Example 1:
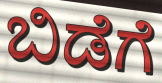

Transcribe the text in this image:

ಬಿಡೆಗೆ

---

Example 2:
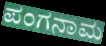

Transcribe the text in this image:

ಪಂಗನಾಮ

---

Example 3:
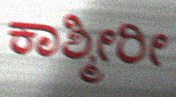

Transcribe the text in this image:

ಕಾಶ್ಮೀರೀ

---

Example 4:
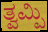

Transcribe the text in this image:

ತ್ವಮ್ಪಿ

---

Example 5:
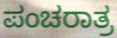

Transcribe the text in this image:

ಪಂಚರಾತ್ರ